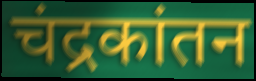
चंद्रकांतन